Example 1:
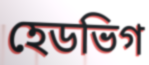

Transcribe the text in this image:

হেডভিগ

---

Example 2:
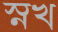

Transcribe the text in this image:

স্নখ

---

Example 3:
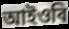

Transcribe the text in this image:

আইওবি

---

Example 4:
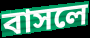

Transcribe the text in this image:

বাসলে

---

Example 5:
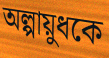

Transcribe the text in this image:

অল্পায়ুধকে